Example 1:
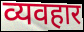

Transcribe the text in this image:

व्यवहार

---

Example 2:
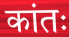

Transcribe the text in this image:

कांतः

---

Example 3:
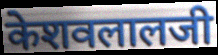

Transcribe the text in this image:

केशवलालजी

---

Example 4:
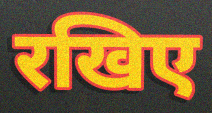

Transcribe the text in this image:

रखिए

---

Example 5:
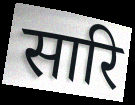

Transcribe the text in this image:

सारि